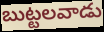
బుట్టలవాడు